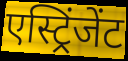
एस्ट्रिंजेंट